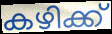
കഴിക്ക്